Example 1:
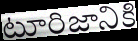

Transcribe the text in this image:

టూరిజానికి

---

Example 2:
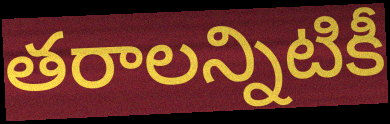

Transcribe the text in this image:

తరాలన్నిటికీ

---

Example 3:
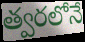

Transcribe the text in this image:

త్వరలోనే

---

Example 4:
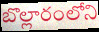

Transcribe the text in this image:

బొల్లారంలోని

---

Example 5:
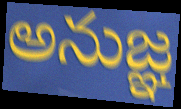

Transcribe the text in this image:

అనుజ్ఞ